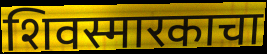
शिवस्मारकाचा